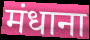
मंधाना